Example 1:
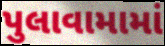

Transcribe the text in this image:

પુલાવામામાં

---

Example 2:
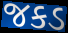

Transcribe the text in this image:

જકડ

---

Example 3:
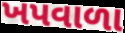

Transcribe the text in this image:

ખપવાળા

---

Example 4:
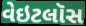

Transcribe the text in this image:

વેઇટલૉસ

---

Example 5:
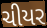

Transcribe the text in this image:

ચીયર